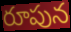
రూపున